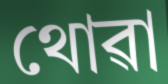
থোৱা